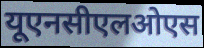
यूएनसीएलओएस